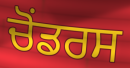
ਚੋਂਡਰਸ